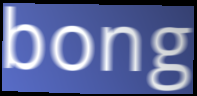
bong